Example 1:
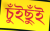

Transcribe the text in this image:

চুঁইছুঁই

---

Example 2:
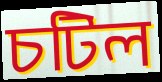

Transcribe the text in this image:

চটিল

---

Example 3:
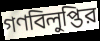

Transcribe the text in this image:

গণবিলুপ্তির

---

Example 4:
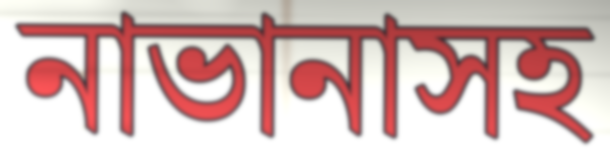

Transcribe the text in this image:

নাভানাসহ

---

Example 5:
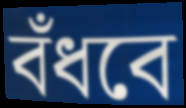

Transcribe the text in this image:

বঁধবে